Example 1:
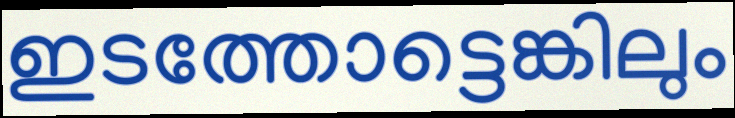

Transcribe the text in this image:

ഇടത്തോട്ടെങ്കിലും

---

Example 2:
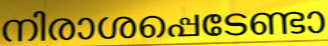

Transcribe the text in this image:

നിരാശപ്പെടേണ്ടാ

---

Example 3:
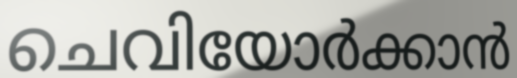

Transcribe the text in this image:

ചെവിയോർക്കാൻ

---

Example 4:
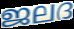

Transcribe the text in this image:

ജലദ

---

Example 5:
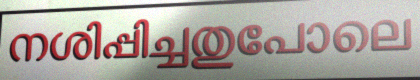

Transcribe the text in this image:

നശിപ്പിച്ചതുപോലെ